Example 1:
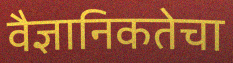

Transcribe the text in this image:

वैज्ञानिकतेचा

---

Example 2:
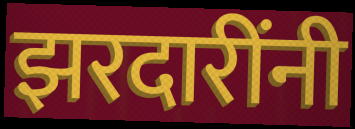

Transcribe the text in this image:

झरदारींनी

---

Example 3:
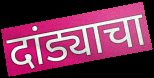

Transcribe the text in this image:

दांड्याचा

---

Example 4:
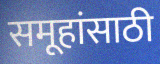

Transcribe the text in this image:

समूहांसाठी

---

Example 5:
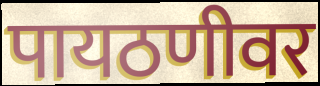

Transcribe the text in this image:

पायठणीवर